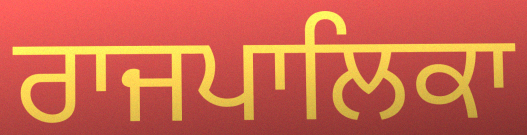
ਰਾਜਪਾਲਿਕਾ